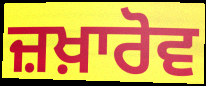
ਜ਼ਖ਼ਾਰੋਵ